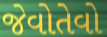
જેવોતેવો